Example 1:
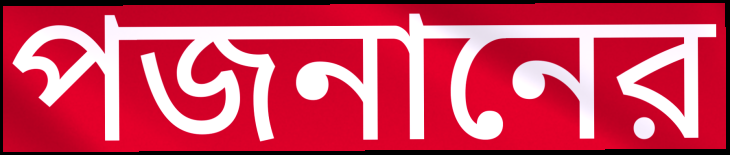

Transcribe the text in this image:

পজনানের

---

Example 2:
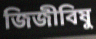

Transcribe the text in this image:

জিজীবিষু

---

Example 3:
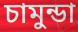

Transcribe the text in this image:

চামুন্ডা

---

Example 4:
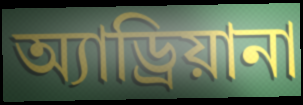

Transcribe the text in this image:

অ্যাড্রিয়ানা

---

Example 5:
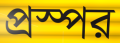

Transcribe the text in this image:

প্রস্পর